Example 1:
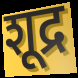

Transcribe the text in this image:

शूद्र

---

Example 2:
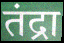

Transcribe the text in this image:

तंद्रा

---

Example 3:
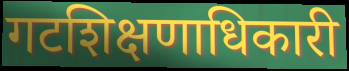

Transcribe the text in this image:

गटशिक्षणाधिकारी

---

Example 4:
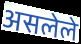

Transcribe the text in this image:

असलेले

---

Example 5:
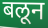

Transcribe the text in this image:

बलून